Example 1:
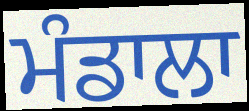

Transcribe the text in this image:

ਮੰਡਾਲਾ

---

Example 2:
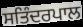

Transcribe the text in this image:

ਸਤਿੰਦਰਪਾਲ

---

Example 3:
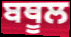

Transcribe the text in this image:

ਬਥੂਲ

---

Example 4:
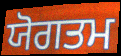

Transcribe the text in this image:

ਯੋਗਤਮ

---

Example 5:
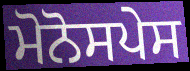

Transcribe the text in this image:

ਮੋਨੋਸਪੇਸ